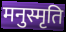
मनुस्मृति